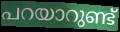
പറയാറുണ്ട്